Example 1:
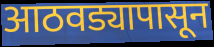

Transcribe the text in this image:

आठवड्यापासून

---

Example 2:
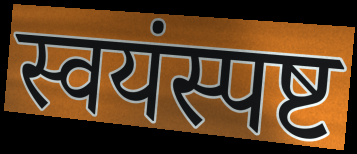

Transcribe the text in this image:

स्वयंस्पष्ट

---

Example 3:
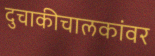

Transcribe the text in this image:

दुचाकीचालकांवर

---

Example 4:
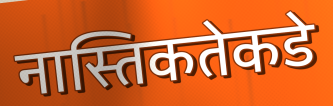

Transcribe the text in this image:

नास्तिकतेकडे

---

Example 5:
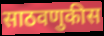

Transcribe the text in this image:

साठवणुकीस